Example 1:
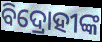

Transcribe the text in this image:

ବିଦ୍ରୋହୀଙ୍କ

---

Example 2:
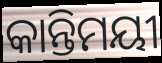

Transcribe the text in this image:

କାନ୍ତିମୟୀ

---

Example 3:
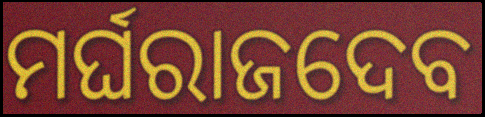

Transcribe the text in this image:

ମର୍ଘରାଜଦେବ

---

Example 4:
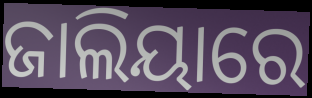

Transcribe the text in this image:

ଜାଲିୟାରେ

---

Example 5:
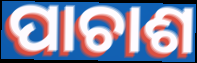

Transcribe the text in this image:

ପାଚାଶ